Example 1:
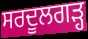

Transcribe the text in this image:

ਸਰਦੂਲਗੜ੍ਹ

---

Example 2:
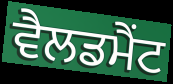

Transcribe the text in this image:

ਵੈਲਡਮੈਂਟ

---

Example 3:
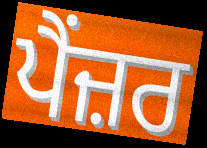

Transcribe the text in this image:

ਪੈਂਜ਼ਰ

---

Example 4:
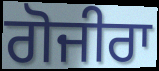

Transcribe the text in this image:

ਗੋਜੀਰਾ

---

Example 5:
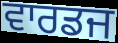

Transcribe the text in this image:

ਵਾਰਡਜ